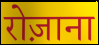
रोज़ाना